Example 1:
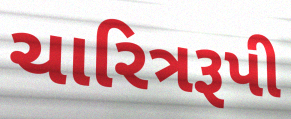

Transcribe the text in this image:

ચારિત્રરૂપી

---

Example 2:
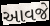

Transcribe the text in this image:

આવજે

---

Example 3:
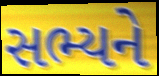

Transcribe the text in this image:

સભ્યને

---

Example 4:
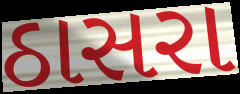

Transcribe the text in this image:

ઠાસરા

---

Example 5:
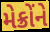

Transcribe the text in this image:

મેક્રોંને